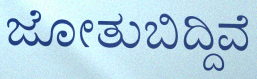
ಜೋತುಬಿದ್ದಿವೆ